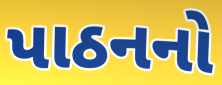
પાઠનનો